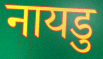
नायडु